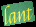
lant